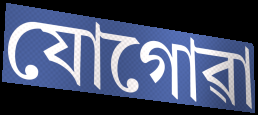
যোগোৱা